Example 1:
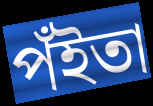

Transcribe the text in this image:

পঁইতা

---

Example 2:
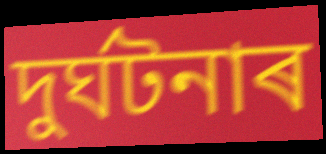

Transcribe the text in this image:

দুৰ্ঘটনাৰ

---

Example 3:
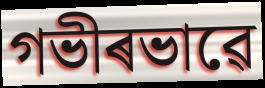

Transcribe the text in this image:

গভীৰভাৱে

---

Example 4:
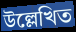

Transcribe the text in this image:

উল্লেখিত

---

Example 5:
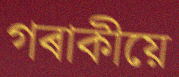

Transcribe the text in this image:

গৰাকীয়ে